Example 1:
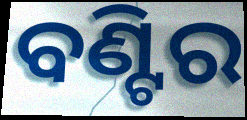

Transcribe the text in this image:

ବଣ୍ଟିର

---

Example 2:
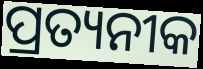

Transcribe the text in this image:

ପ୍ରତ୍ୟନୀକ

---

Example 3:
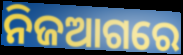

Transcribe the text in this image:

ନିଜଆଗରେ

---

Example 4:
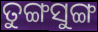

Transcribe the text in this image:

ତୁଙ୍ଗସୁଙ୍ଗ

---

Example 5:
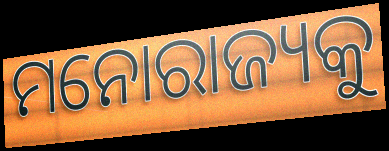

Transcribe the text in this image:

ମନୋରାଜ୍ୟକୁ